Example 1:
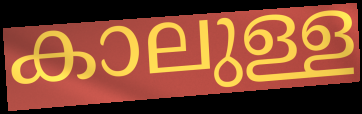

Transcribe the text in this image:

കാലുള്ള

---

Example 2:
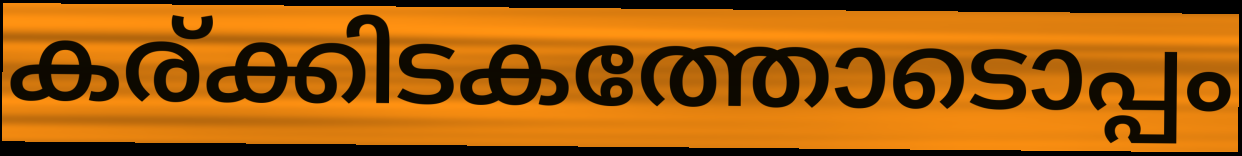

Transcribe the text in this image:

കര്ക്കിടകത്തോടൊപ്പം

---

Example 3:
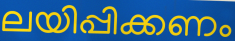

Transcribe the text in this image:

ലയിപ്പിക്കണം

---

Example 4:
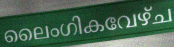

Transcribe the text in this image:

ലൈംഗികവേഴ്ച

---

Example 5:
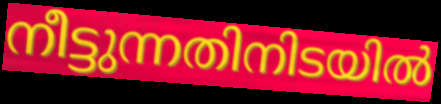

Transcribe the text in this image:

നീട്ടുന്നതിനിടയിൽ